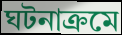
ঘটনাক্রমে